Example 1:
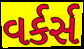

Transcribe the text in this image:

વર્કર્સ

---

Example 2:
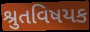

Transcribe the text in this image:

શ્રુતવિષયક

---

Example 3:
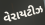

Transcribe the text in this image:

વેરાયટીઝ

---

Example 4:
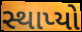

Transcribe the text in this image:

સ્થાપ્યો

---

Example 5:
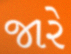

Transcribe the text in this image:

જારે